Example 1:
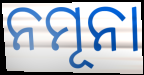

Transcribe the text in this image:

ନମୂନା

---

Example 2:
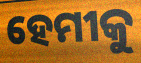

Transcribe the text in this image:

ହେମୀକୁ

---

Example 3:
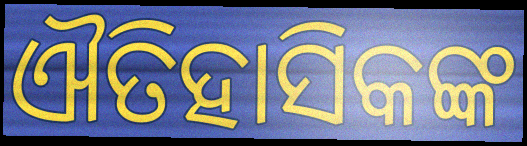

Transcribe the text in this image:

ଐତିହାସିକଙ୍କ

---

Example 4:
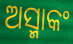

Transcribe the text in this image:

ଅସ୍ମାକଂ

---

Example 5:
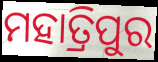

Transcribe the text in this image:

ମହାତ୍ରିପୁର